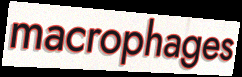
macrophages